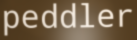
peddler